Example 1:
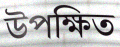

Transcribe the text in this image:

উপক্ষিত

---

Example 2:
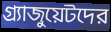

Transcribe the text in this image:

গ্র্যাজুয়েটদের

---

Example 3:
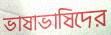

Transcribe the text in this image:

ভাষাভাষিদের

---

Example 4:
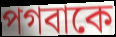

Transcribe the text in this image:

পগবাকে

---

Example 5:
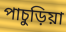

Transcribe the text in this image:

পাচুড়িয়া